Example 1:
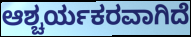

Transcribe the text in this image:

ಆಶ್ಚರ್ಯಕರವಾಗಿದೆ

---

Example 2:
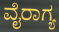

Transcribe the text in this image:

ವೈರಾಗ್ಯ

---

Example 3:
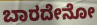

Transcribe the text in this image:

ಬಾರದೇನೋ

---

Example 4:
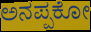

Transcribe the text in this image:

ಅನಪ್ಪಕೋ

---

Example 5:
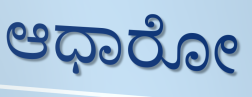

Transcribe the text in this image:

ಆಧಾರೋ